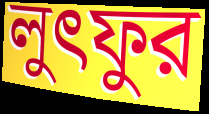
লুৎফুর